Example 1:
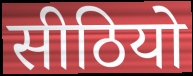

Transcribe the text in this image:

सीठियो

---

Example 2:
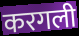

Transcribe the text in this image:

करगली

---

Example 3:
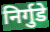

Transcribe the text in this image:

निर्गुडे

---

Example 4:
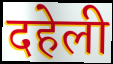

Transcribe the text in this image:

दहेली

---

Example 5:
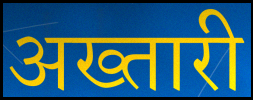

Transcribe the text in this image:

अख्तारी